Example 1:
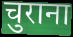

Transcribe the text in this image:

चुराना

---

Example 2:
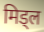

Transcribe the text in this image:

मिड्ल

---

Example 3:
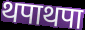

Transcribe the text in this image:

थपाथपा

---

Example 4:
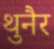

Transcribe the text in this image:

थुनैर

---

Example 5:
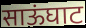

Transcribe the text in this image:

साऊंघाट